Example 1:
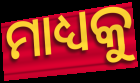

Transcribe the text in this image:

ମାଧ୍ୟକୁ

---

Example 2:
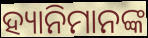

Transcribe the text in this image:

ହ୍ୟାନିମାନଙ୍କ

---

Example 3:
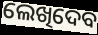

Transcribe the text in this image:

ଲେଖିଦେବ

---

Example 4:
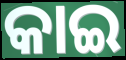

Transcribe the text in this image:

କାଇ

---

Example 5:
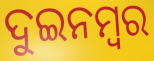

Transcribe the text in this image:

ଦୁଇନମ୍ୱର